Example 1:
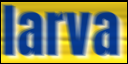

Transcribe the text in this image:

larva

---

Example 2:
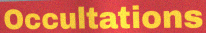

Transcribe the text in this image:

Occultations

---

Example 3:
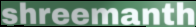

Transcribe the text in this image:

shreemanth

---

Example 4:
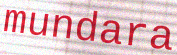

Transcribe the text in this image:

mundara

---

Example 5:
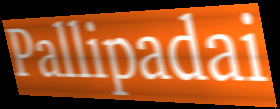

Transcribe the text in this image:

Pallipadai